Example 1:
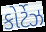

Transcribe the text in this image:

કોર્ટેઝ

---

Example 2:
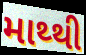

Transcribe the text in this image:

માથ્થી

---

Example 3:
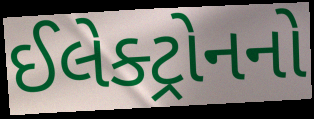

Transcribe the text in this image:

ઈલેક્ટ્રોનનો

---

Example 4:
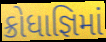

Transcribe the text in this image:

ક્રોધાજ્ઞિમાં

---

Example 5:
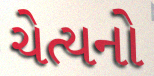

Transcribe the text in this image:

ચેત્યનો